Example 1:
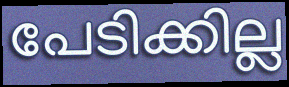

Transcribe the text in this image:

പേടിക്കില്ല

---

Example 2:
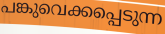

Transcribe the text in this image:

പങ്കുവെക്കപ്പെടുന്ന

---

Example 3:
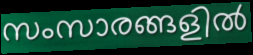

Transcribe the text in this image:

സംസാരങ്ങളിൽ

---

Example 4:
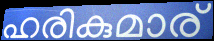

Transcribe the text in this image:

ഹരികുമാര്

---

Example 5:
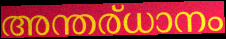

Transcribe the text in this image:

അന്തര്ധാനം